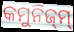
କମୁନିଜ୍‌ମ୍